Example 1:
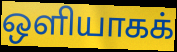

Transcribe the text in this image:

ஒளியாகக்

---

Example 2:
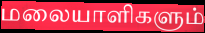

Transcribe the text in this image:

மலையாளிகளும்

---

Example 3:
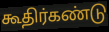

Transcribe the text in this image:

கூதிர்கண்டு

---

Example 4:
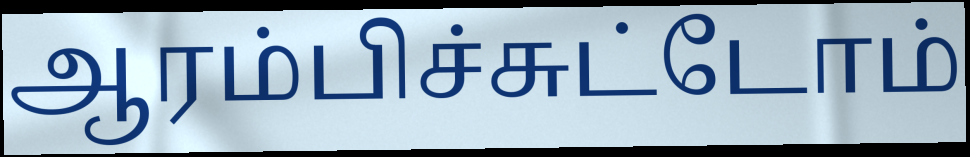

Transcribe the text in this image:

ஆரம்பிச்சுட்டோம்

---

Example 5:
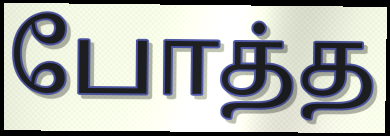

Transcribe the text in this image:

போத்த